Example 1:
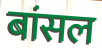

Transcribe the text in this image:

बांसल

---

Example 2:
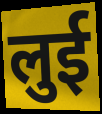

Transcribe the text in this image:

लुई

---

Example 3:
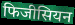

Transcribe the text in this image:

फिजीसियन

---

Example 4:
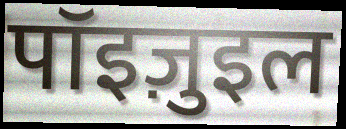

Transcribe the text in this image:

पॉइज़ुइल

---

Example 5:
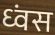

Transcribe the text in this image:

ध्वंस